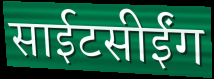
साईटसीईंग